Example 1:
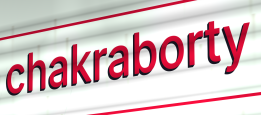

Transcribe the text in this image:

chakraborty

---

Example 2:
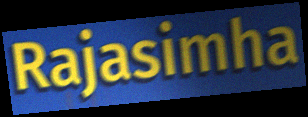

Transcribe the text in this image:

Rajasimha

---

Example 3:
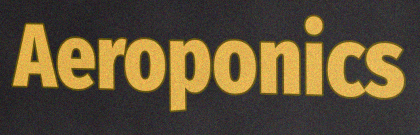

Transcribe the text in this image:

Aeroponics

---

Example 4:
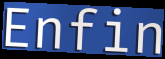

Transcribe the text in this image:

Enfin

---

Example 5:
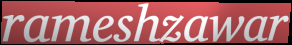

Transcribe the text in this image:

rameshzawar